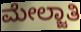
ಮೇಲ್ಜಾತಿ